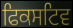
ਫਿਕਸਟਿਵ